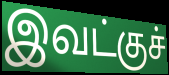
இவட்குச்